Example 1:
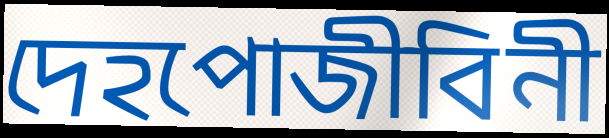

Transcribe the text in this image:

দেহপোজীবিনী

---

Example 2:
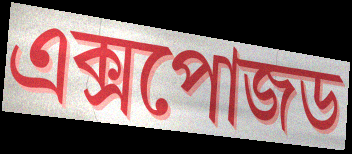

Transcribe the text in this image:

এক্সপোজড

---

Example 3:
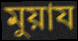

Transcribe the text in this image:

মুয়ায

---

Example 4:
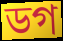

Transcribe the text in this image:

ডগ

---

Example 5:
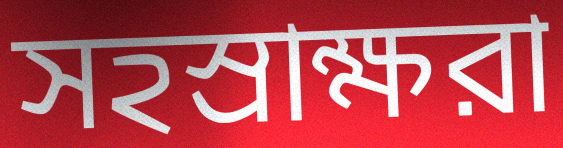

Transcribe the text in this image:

সহস্রাক্ষরা